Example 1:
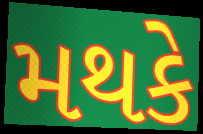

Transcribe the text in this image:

મથકે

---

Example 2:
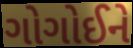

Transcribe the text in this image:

ગોગોઈને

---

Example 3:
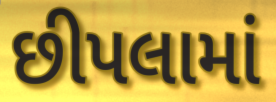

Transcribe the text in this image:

છીપલામાં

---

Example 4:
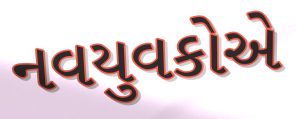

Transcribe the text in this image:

નવયુવકોએ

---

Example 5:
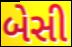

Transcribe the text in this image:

બેસી